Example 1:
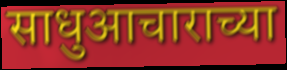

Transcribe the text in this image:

साधुआचाराच्या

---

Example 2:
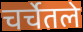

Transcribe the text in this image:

चर्चेतले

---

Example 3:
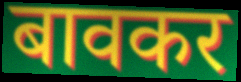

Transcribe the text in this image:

बावकर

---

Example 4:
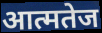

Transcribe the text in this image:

आत्मतेज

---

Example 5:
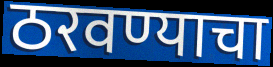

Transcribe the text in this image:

ठरवण्याचा